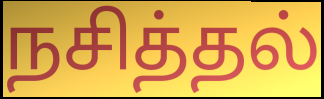
நசித்தல்